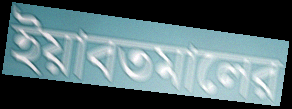
ইয়াবতমালের